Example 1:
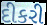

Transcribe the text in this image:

દીકરી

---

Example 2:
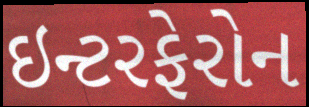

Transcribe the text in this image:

ઇન્ટરફેરોન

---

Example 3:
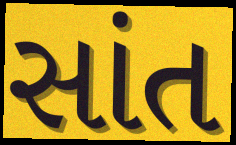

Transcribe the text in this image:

સાંત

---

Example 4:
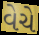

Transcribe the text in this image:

વેચે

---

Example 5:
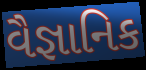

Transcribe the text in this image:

વૈજ્ઞાનિક